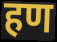
हण